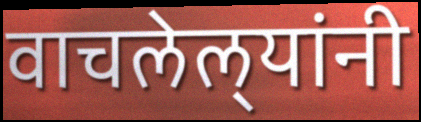
वाचलेल्यांनी